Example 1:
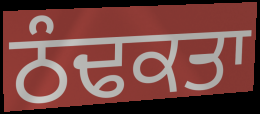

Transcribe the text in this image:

ਠੰਢਕਤਾ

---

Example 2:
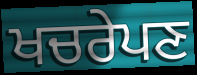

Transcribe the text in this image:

ਖਚਰੇਪਣ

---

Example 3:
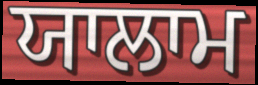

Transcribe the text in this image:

ਯਾਲਾਮ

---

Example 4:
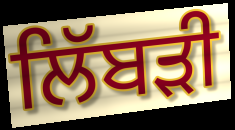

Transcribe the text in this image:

ਲਿੱਬੜੀ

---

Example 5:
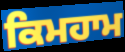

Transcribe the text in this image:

ਕਿਮਹਾਮ